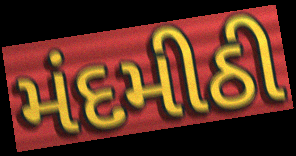
મંદમીઠી